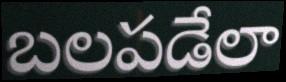
బలపడేలా